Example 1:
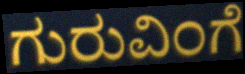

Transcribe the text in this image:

ಗುರುವಿಂಗೆ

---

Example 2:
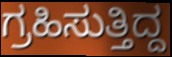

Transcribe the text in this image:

ಗ್ರಹಿಸುತ್ತಿದ್ದ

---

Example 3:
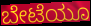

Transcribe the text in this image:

ಬೇಟೆಯೂ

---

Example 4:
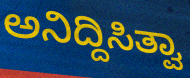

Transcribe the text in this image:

ಅನಿದ್ದಿಸಿತ್ವಾ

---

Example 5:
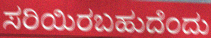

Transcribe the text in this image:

ಸರಿಯಿರಬಹುದೆಂದು